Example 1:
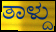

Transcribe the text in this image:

ತಾಳ್ದು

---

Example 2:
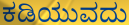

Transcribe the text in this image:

ಕಡಿಯುವದು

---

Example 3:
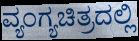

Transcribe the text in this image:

ವ್ಯಂಗ್ಯಚಿತ್ರದಲ್ಲಿ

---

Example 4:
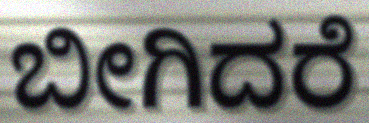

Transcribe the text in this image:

ಬೀಗಿದರೆ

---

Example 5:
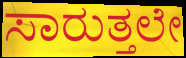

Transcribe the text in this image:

ಸಾರುತ್ತಲೇ